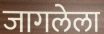
जागलेला